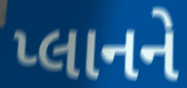
પ્લાનને